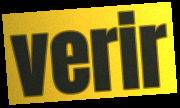
verir